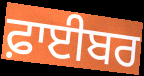
ਫ਼ਾਈਬਰ